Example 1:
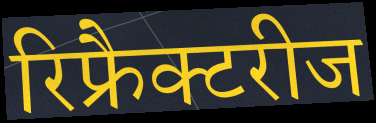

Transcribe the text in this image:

रिफ्रैक्टरीज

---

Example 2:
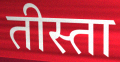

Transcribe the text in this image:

तीस्ता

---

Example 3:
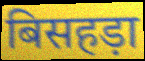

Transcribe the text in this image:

बिसहड़ा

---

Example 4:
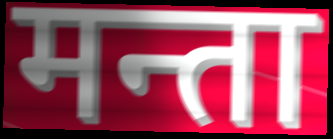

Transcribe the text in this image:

मन्ता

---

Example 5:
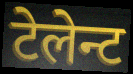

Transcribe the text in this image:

टेलेन्ट